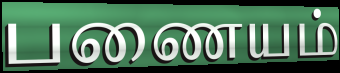
பணையம்